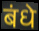
बंधे